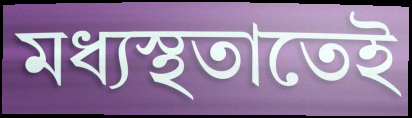
মধ্যস্থতাতেই